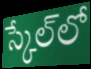
స్కేల్‌లో